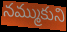
నమ్ముకుని